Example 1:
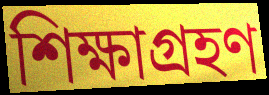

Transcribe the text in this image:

শিক্ষাগ্রহণ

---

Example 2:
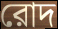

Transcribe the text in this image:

রোদ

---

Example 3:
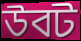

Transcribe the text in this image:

উবট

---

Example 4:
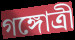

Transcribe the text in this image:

গঙ্গোত্রী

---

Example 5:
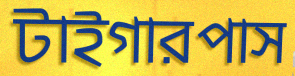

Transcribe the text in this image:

টাইগারপাস